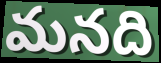
మనది